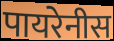
पायरेनीस